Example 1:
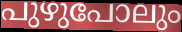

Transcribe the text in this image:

പുഴുപോലും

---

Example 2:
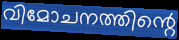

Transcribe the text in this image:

വിമോചനത്തിന്റെ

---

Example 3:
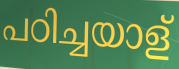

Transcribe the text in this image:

പഠിച്ചയാള്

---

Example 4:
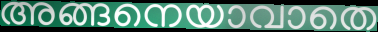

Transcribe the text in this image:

അങ്ങനെയാവാതെ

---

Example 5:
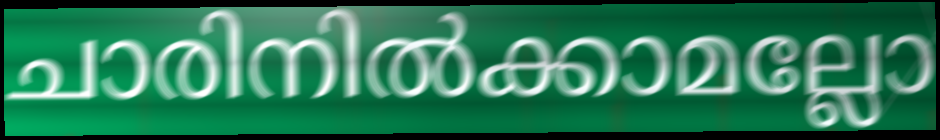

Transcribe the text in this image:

ചാരിനിൽക്കാമല്ലോ